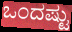
ಒಂದಷ್ಟು